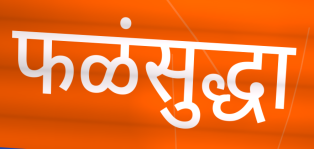
फळंसुद्धा